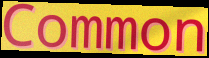
Common